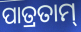
ପାତ୍ରତାମ୍